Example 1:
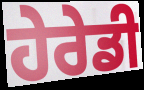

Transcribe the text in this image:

ਹੇਰੇਡੀ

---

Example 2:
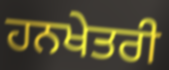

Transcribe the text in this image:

ਹਨਖੇਤਰੀ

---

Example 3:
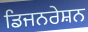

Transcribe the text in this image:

ਡਿਜਨਰੇਸ਼ਨ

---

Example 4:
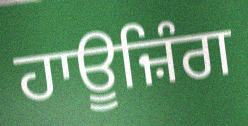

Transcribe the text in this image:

ਹਾਊਜ਼ਿੰਗ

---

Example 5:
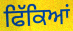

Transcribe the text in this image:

ਫਿੱਕਿਆਂ